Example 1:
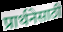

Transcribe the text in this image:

प्रार्थनेसाठी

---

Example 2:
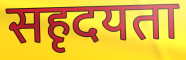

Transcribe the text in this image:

सहृदयता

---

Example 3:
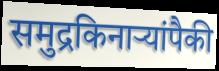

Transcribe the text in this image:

समुद्रकिनाऱ्यांपैकी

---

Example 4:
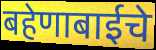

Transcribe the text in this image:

बहेणाबाईचे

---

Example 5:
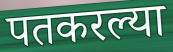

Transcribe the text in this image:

पतकरल्या